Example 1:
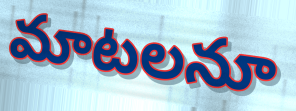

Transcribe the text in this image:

మాటలనూ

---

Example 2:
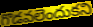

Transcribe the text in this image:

గొడవలెందుకని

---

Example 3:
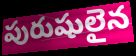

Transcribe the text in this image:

పురుషులైన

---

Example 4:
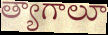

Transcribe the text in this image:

త్యాగాలూ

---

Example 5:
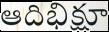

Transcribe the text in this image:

ఆదిభిక్షూ